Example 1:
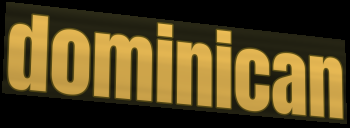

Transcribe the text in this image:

dominican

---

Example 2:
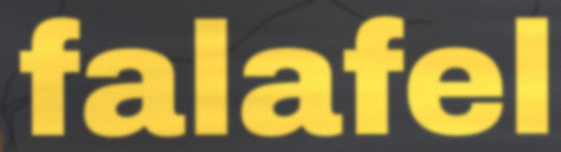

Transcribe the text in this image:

falafel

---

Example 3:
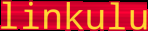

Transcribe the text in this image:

linkulu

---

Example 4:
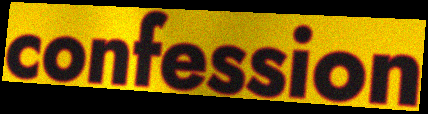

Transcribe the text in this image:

confession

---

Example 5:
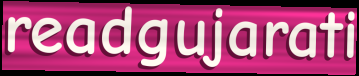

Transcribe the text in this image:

readgujarati